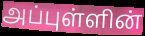
அப்புள்ளின்